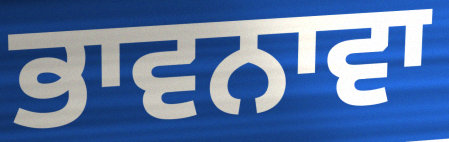
ਭਾਵਨਾਵਾ